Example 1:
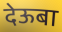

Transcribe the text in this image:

देऊबा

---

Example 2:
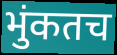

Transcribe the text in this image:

भुंकतच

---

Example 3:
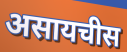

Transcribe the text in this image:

असायचीस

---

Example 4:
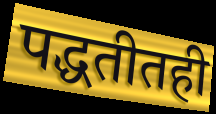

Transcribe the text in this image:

पद्धतीतही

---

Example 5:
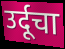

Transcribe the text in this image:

उर्दूचा